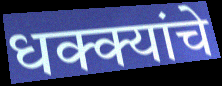
धक्क्यांचे